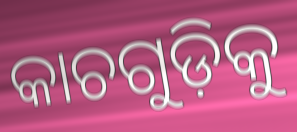
କାଚଗୁଡ଼ିକୁ